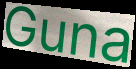
Guna